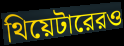
থিয়েটারেরও